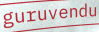
guruvendu